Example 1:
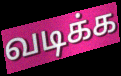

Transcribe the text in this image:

வடிக்க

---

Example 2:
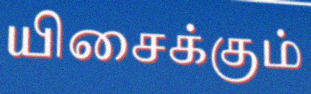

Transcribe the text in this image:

யிசைக்கும்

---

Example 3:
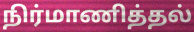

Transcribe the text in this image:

நிர்மாணித்தல்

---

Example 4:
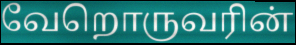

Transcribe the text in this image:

வேறொருவரின்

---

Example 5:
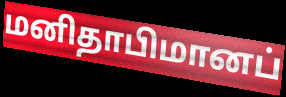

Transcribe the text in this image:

மனிதாபிமானப்